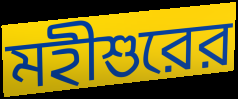
মহীশুরের